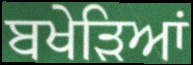
ਬਖੇੜਿਆਂ